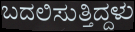
ಬದಲಿಸುತ್ತಿದ್ದಳು